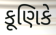
કૂણિકે